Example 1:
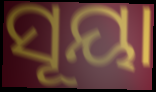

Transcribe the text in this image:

ସୂୟା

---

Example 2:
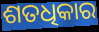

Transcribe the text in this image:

ଶତଧିକାର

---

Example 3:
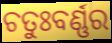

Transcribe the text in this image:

ଚତୁଃବର୍ଣ୍ଣର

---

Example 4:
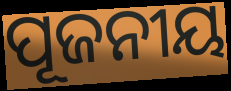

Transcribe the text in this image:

ପୂଜନୀୟ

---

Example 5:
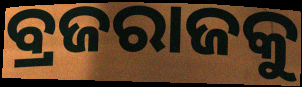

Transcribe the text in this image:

ବ୍ରଜରାଜକୁ